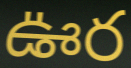
ఊర